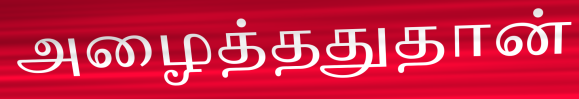
அழைத்ததுதான்